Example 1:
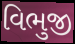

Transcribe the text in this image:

વિભુજી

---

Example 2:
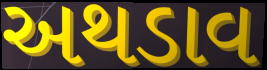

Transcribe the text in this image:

અથડાવ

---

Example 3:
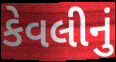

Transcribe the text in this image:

કેવલીનું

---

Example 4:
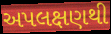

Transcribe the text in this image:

અપલક્ષણથી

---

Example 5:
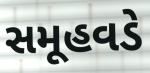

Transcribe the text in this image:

સમૂહવડે